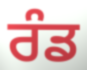
ਰੰਡ